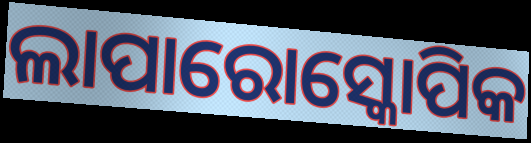
ଲାପାରୋସ୍କୋପିକ